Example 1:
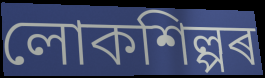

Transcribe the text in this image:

লোকশিল্পৰ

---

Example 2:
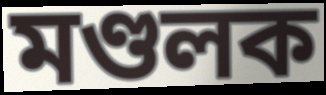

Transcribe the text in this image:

মণ্ডলক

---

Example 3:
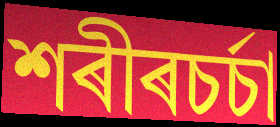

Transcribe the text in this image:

শৰীৰচৰ্চা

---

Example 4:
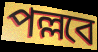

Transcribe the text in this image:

পল্লবে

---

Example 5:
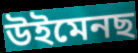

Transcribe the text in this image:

উইমেনছ